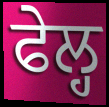
ਫੇਲ੍ਹ